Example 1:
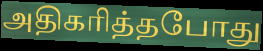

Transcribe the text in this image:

அதிகரித்தபோது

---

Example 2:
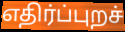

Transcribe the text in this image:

எதிர்ப்புறச்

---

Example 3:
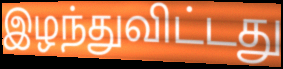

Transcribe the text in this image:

இழந்துவிட்டது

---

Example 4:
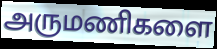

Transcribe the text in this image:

அருமணிகளை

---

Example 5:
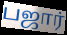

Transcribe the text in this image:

பஜார்